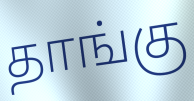
தாங்கு